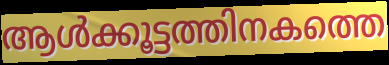
ആൾക്കൂട്ടത്തിനകത്തെ